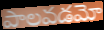
పాలవడమో